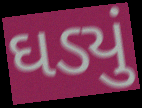
ઘડ્યું